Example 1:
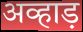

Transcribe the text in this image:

अव्हाड़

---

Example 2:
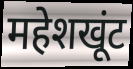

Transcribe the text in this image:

महेशखूंट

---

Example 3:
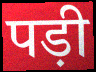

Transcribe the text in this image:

पड़ी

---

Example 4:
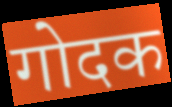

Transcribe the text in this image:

गोदक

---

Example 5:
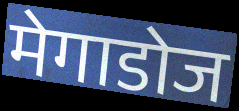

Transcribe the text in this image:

मेगाडोज